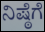
ನಿಷ್ಠೆಗೆ